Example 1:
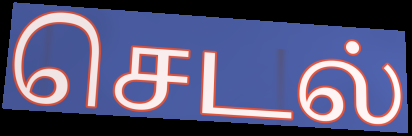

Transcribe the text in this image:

செடல்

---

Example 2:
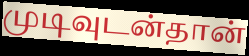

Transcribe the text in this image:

முடிவுடன்தான்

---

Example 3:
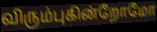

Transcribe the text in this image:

விரும்புகின்றோமோ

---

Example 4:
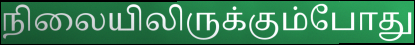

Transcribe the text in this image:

நிலையிலிருக்கும்போது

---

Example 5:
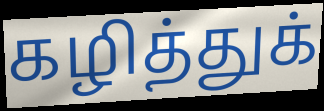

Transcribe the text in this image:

கழித்துக்